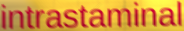
intrastaminal